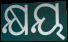
କ୍ଷୟ